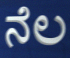
ನೆಲ